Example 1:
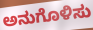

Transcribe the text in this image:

ಅನುಗೊಳಿಸು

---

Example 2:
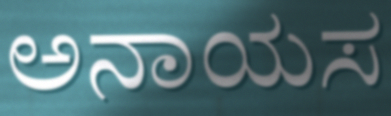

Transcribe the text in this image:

ಅನಾಯಸ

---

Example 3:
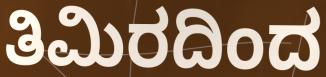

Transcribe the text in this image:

ತಿಮಿರದಿಂದ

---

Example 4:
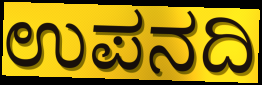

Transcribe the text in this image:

ಉಪನದಿ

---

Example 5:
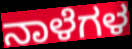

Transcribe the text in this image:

ನಾಳೆಗಳ